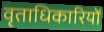
वृताधिकारियों